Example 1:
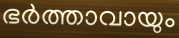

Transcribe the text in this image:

ഭർത്താവായും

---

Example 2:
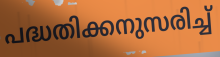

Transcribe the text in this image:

പദ്ധതിക്കനുസരിച്ച്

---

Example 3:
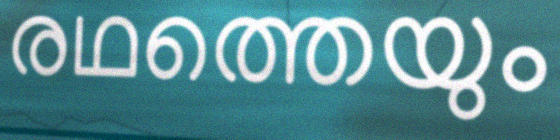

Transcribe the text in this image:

രഥത്തെയും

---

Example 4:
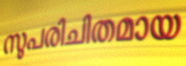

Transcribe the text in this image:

സുപരിചിതമായ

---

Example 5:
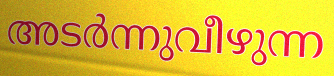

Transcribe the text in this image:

അടർന്നുവീഴുന്ന